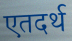
एतदर्थ